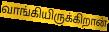
வாங்கியிருக்கிறான்